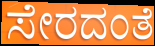
ಸೇರದಂತೆ